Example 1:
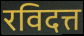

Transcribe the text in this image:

रविदत्त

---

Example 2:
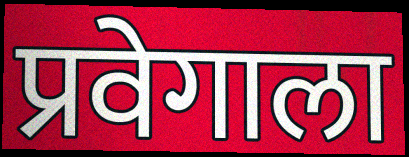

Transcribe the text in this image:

प्रवेगाला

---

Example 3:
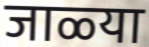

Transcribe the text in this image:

जाळ्या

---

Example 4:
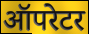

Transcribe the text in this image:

ऑपरेटर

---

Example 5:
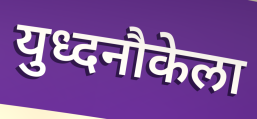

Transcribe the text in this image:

युध्दनौकेला